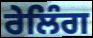
ਰੇਲਿੰਗ